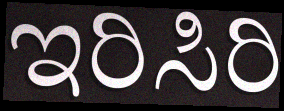
ಇರಿಸಿರಿ